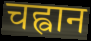
चह्वान